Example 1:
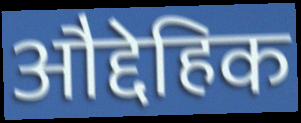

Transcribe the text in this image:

औद्देहिक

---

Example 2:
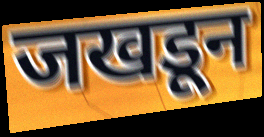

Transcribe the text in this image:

जखडून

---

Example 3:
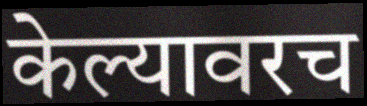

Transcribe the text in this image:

केल्यावरच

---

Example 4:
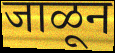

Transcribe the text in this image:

जाळून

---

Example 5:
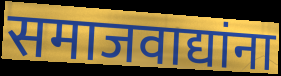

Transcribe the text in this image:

समाजवाद्यांना